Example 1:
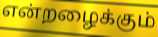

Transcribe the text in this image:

என்றழைக்கும்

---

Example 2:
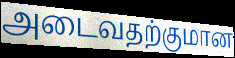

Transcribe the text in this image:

அடைவதற்குமான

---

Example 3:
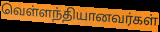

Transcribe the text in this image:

வெள்ளந்தியானவர்கள்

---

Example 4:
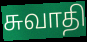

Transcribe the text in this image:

சுவாதி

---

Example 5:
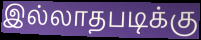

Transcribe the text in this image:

இல்லாதபடிக்கு